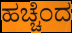
ಹಚ್ಚೆಂದ